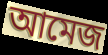
আমেজ